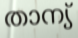
താന്യ്